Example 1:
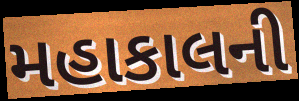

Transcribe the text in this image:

મહાકાલની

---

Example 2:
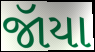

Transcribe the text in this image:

જૉયા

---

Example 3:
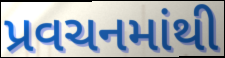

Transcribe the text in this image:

પ્રવચનમાંથી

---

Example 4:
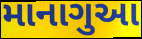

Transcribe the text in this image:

માનાગુઆ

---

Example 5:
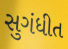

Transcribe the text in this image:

સુગંધીત